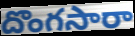
దొంగసారా